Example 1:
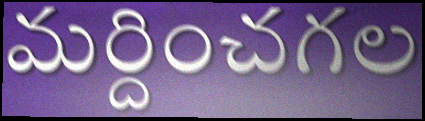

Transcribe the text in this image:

మర్దించగల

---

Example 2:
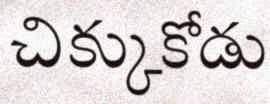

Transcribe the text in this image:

చిక్కుకోడు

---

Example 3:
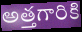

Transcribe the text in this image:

అత్తగారికి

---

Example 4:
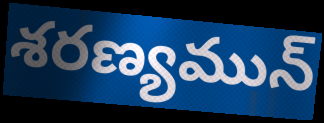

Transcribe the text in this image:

శరణ్యమున్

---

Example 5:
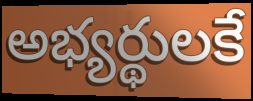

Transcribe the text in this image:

అభ్యర్థులకే